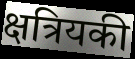
क्षत्रियकी